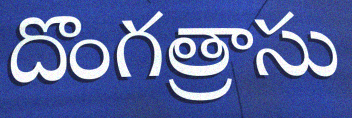
దొంగత్రాసు